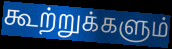
கூற்றுக்களும்